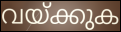
വയ്ക്കുക